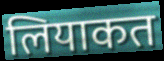
लियाकत